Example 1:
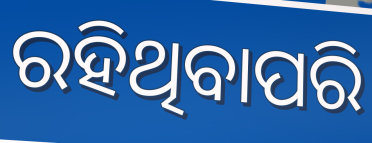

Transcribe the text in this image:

ରହିଥିବାପରି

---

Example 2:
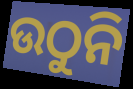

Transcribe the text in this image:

ଉଠୁନି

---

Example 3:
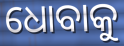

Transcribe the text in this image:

ଧୋବାକୁ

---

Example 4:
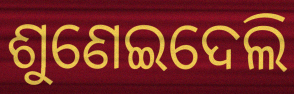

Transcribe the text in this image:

ଶୁଣେଇଦେଲି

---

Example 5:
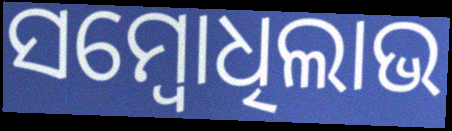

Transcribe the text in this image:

ସମ୍ବୋଧିଲାଭ